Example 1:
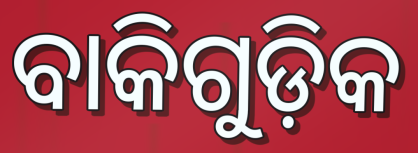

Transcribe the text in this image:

ବାକିଗୁଡ଼ିକ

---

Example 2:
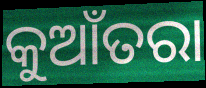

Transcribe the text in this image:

କୁଆଁତରା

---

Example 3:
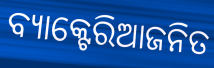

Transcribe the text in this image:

ବ୍ୟାକ୍ଟେରିଆଜନିତ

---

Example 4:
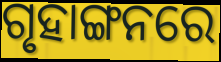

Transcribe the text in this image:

ଗୃହାଙ୍ଗନରେ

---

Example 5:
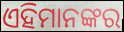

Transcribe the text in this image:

ଏହିମାନଙ୍କର